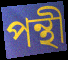
পন্থী